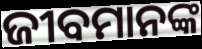
ଜୀବମାନଙ୍କ